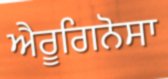
ਐਰੂਗਿਨੋਸਾ